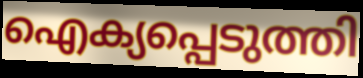
ഐക്യപ്പെടുത്തി